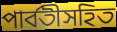
পার্বতীসহিত